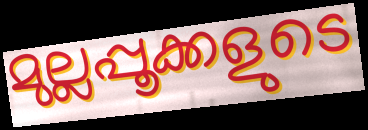
മുല്ലപ്പൂക്കളുടെ